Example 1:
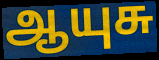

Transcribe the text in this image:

ஆயுசு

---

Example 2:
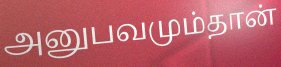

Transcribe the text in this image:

அனுபவமும்தான்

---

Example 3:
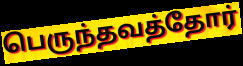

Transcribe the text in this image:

பெருந்தவத்தோர்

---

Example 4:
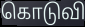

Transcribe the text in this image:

கொடுவி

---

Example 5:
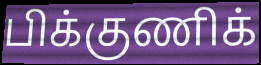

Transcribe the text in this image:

பிக்குணிக்